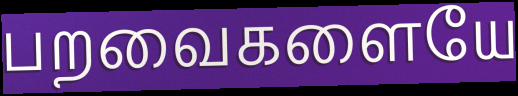
பறவைகளையே